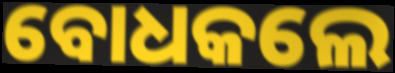
ବୋଧକଲେ